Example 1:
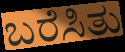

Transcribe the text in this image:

ಬರೆಸಿತು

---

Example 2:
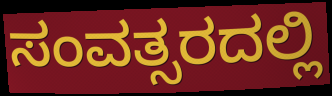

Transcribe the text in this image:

ಸಂವತ್ಸರದಲ್ಲಿ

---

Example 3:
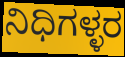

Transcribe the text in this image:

ನಿಧಿಗಳ್ಳರ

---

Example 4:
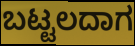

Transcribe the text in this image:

ಬಟ್ಟಲದಾಗ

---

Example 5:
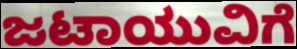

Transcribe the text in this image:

ಜಟಾಯುವಿಗೆ